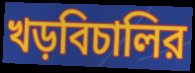
খড়বিচালির